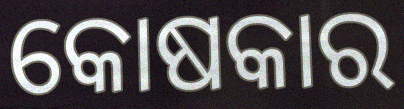
କୋଷକାର